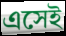
এসেই